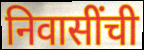
निवासींची